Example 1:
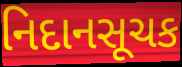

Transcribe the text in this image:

નિદાનસૂચક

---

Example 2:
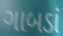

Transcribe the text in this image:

ગાબડાં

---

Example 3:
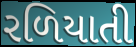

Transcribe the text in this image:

રળિયાતી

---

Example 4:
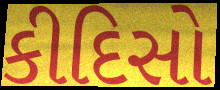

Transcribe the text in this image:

કીદિસો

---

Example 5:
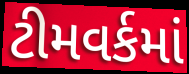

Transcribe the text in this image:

ટીમવર્કમાં